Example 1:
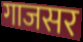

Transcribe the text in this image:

गाजसर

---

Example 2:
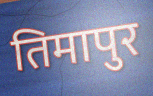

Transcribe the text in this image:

तिमापुर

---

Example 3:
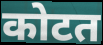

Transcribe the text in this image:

कोटत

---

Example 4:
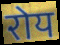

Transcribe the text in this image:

रोय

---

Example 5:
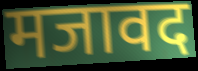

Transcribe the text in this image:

मजावद